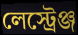
লেস্ট্রেঞ্জ